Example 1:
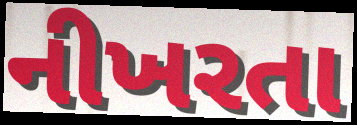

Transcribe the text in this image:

નીખરતા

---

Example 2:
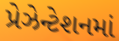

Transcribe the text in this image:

પ્રેઝેન્ટેશનમાં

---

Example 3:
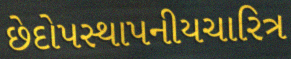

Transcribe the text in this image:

છેદોપસ્થાપનીયચારિત્ર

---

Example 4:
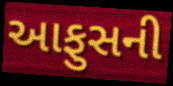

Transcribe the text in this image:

આફુસની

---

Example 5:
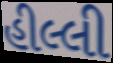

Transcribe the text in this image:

હીલ્લી